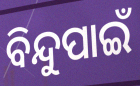
ବିନ୍ଦୁପାଇଁ